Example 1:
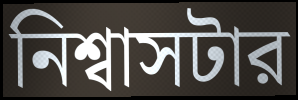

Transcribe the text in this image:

নিশ্বাসটার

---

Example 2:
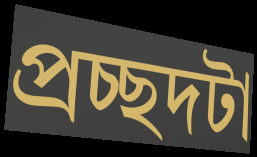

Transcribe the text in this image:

প্রচ্ছদটা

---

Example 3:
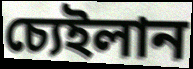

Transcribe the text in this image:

চ্যেইলান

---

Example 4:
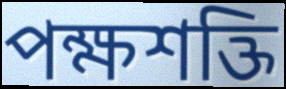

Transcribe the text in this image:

পক্ষশক্তি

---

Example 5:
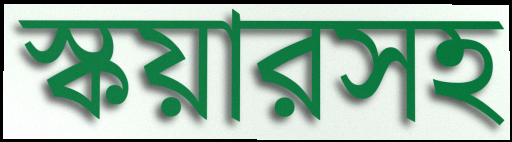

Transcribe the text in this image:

স্কয়ারসহ